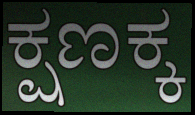
ಕ್ಷಣಕ್ಕ